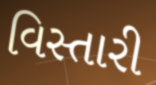
વિસ્તારી